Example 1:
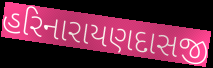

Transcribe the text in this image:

હરિનારાયણદાસજી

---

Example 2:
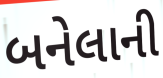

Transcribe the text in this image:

બનેલાની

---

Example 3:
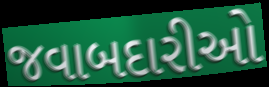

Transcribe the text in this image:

જવાબદારીઓ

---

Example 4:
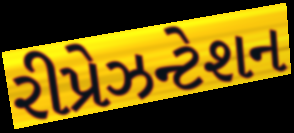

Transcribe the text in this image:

રીપ્રેઝન્ટેશન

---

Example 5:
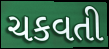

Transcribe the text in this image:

ચકવતી